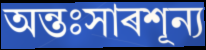
অন্তঃসাৰশূন্য